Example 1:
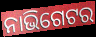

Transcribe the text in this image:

ନାଭିଗେଟର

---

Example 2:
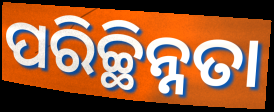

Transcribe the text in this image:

ପରିଚ୍ଛିନ୍ନତା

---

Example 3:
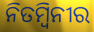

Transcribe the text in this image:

ନିତମ୍ବିନୀର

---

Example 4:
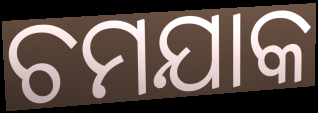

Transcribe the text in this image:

ଚମଯାକ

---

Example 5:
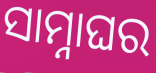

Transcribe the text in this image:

ସାମ୍ନାଘର